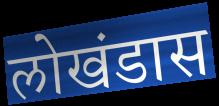
लोखंडास